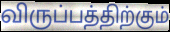
விருப்பத்திற்கும்